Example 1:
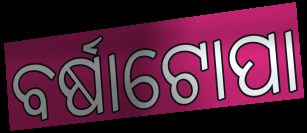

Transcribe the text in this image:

ବର୍ଷାଟୋପା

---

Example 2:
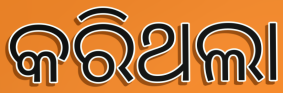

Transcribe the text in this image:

କରିଥଲା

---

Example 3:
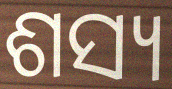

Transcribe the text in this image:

ଶସ୍ଯ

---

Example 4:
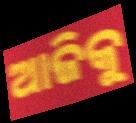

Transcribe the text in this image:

ଆଜିକୁ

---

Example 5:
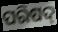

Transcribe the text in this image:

ପରିଷଦ୍